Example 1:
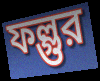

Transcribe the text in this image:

ফল্গুর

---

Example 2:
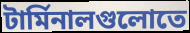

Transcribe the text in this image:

টার্মিনালগুলোতে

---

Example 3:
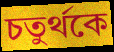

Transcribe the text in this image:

চতুর্থকে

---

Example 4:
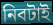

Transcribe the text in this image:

নিবটাই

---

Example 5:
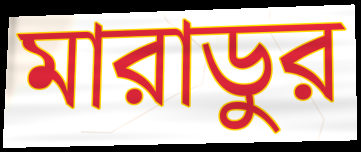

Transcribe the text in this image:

মারাডুর